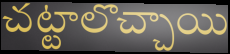
చట్టాలొచ్చాయి